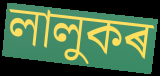
লালুকৰ